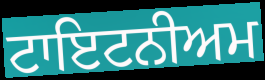
ਟਾਇਟਨੀਅਮ